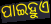
ପାଇହୁଏ